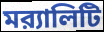
মর‍্যালিটি